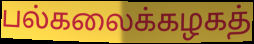
பல்கலைக்கழகத்